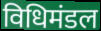
विधिमंडल